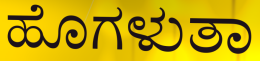
ಹೊಗಳುತಾ